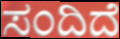
ಸಂದಿದೆ